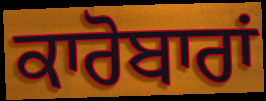
ਕਾਰੋਬਾਰਾਂ